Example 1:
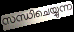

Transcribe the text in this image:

സന്ധിചെയ്യുന്ന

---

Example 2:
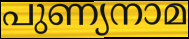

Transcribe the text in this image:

പുണ്യനാമ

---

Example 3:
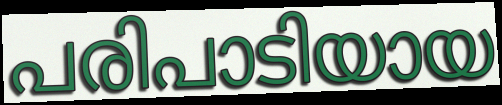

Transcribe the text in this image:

പരിപാടിയായ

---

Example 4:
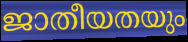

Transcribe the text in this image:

ജാതീയതയും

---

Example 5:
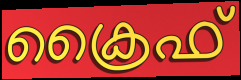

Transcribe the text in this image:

ക്രൈഫ്